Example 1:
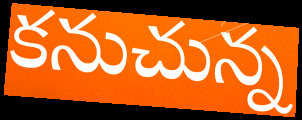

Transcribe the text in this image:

కనుచున్న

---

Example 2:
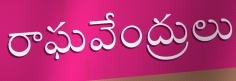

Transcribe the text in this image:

రాఘవేంద్రులు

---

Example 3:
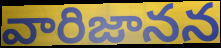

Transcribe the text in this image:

వారిజానన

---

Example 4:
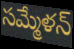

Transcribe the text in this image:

సమ్మేళన్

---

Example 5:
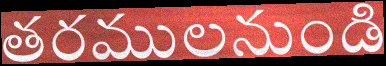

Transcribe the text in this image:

తరములనుండి